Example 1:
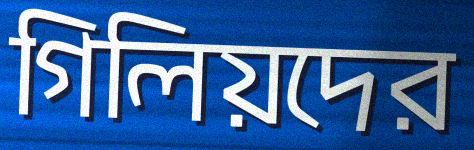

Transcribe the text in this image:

গিলিয়দের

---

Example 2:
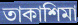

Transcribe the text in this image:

তাকাশিমা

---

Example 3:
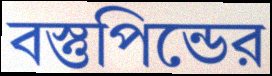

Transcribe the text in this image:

বস্তুপিন্ডের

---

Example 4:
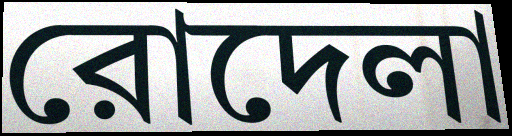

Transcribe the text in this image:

রোদেলা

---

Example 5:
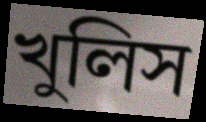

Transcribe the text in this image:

খুলিস